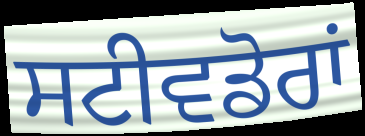
ਸਟੀਵਡੋਰਾਂ